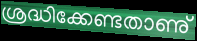
ശ്രദ്ധിക്കേണ്ടതാണു്